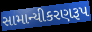
સામાન્યીકરણરૂપ